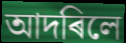
আদৰিলে